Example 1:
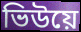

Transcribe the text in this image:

ভিউয়ে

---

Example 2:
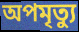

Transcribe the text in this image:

অপমৃত্যু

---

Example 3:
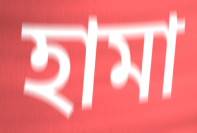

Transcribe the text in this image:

হামা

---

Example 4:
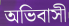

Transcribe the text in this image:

অভিবাসী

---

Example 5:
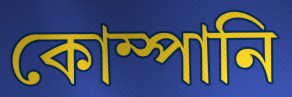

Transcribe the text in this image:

কোম্পানি